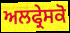
ਅਲਫ੍ਰੇਸਕੋ